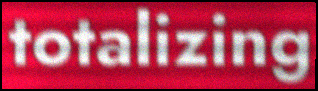
totalizing